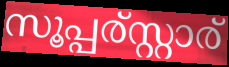
സൂപ്പര്സ്റ്റാര്